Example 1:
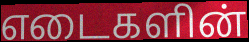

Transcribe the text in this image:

எடைகளின்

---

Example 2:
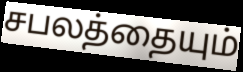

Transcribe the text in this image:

சபலத்தையும்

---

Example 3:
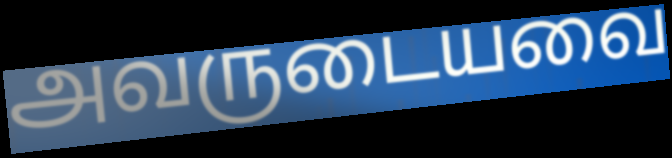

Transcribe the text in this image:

அவருடையவை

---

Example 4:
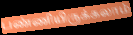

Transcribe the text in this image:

பண்ணியிருக்கலாம்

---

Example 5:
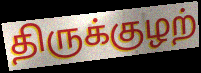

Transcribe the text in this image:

திருக்குழற்